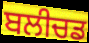
ਬਲੀਚਡ